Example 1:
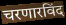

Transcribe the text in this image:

चरणारविंद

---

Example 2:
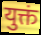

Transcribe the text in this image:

युक्तं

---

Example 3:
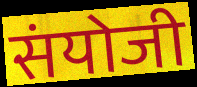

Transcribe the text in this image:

संयोजी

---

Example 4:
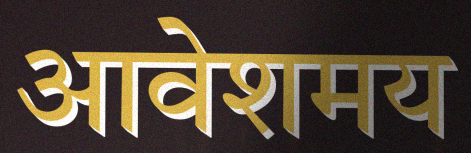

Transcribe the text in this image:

आवेशमय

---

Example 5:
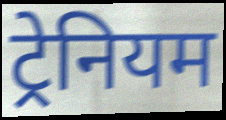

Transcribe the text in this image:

ट्रेनियम